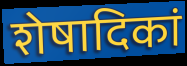
शेषादिकां